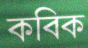
কবিক